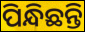
ପିନ୍ଧିଛନ୍ତି